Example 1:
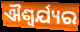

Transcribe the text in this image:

ଐଶ୍ୱର୍ଯ୍ୟର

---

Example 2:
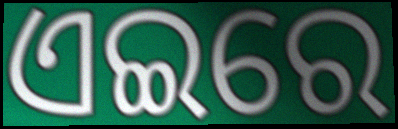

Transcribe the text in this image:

ଏଇରେ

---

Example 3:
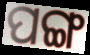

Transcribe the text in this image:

ପଙ୍ଗ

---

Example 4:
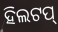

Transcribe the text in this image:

ହିଲଟପ୍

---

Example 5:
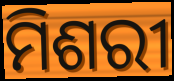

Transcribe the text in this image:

ମିଶରୀ